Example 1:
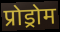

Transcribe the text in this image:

प्रोड्रोम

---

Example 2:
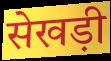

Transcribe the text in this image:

सेखड़ी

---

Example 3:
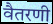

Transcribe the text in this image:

वैतरणी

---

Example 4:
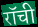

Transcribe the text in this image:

रॉची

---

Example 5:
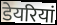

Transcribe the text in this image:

डेयरियां